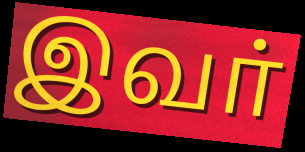
இவர்